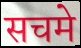
सचमे